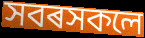
সবৰসকলে